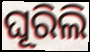
ଘୂରିଲି